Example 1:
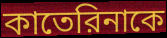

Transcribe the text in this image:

কাতেরিনাকে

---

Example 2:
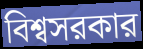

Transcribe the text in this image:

বিশ্বসরকার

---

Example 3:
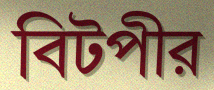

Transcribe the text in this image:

বিটপীর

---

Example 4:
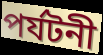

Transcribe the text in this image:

পর্যটনী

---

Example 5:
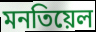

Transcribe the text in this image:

মনতিয়েল